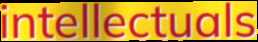
intellectuals